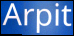
Arpit